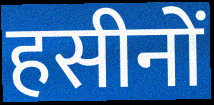
हसीनों